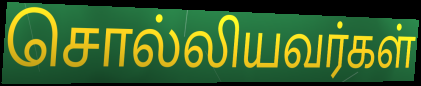
சொல்லியவர்கள்